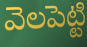
వెలపెట్టి